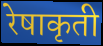
रेषाकृती